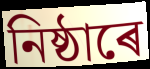
নিষ্ঠাৰে